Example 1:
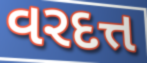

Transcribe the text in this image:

વરદત્ત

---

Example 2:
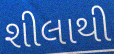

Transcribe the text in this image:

શીલાથી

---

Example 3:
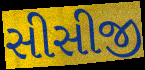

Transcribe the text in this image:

સીસીજી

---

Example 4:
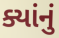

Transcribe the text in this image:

ક્યાંનું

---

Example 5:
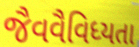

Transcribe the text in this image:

જૈવવૈવિધ્યતા